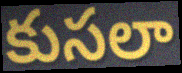
కుసలా